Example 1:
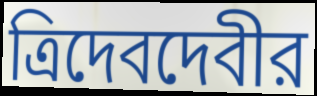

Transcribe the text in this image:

ত্রিদেবদেবীর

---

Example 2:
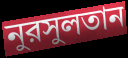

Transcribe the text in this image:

নুরসুলতান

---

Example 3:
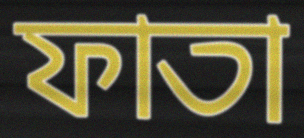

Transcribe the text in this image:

ফাতা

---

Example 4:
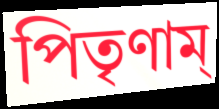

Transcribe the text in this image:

পিতৃণাম্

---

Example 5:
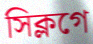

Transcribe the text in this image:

সিক্লগে